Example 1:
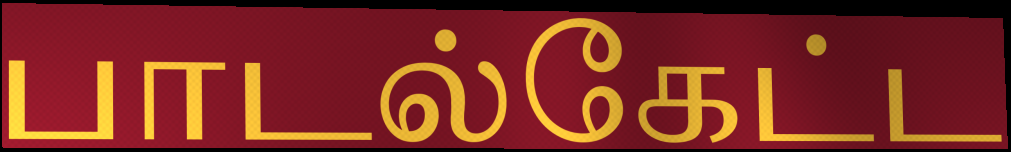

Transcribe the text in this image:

பாடல்கேட்ட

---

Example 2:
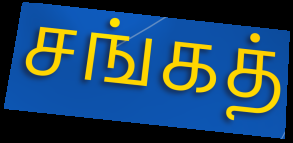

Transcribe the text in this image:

சங்கத்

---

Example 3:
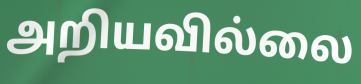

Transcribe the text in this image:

அறியவில்லை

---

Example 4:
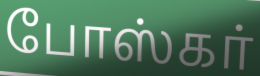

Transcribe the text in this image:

போஸ்கர்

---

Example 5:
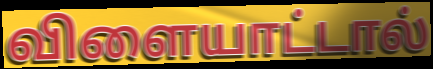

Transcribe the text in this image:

விளையாட்டால்